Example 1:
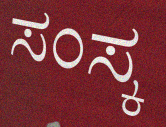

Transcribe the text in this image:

ಸಂಸ್ಕ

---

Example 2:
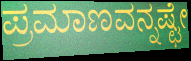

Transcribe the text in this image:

ಪ್ರಮಾಣವನ್ನಷ್ಟೇ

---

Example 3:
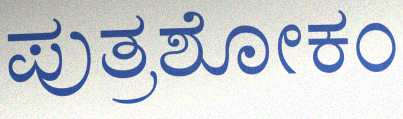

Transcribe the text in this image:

ಪುತ್ರಶೋಕಂ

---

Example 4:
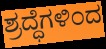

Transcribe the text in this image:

ಶ್ರದ್ಧೆಗಳಿಂದ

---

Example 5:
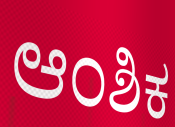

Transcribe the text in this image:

ಆಂಶಿಕ